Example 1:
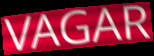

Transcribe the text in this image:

VAGAR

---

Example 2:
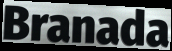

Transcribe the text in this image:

Branada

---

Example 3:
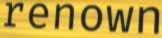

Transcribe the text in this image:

renown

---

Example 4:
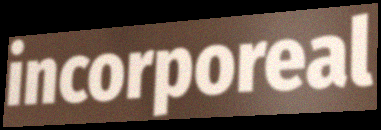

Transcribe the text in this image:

incorporeal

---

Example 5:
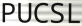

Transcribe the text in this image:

PUCSL